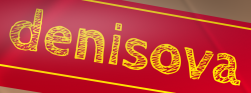
denisova